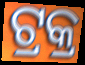
ଟ୍ରକ୍ର